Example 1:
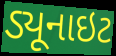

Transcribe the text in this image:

ડ્યૂનાઇટ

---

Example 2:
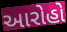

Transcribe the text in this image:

આરોહો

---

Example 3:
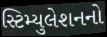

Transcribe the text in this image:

સ્ટિમ્યુલેશનનો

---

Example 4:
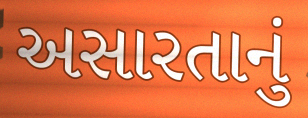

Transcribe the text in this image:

અસારતાનું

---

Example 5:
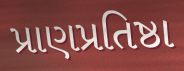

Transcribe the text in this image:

પ્રાણપ્રતિષ્ઠા